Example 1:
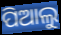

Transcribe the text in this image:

ପିଆଲୁ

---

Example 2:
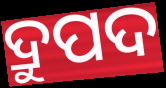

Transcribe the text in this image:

ଦ୍ରୁପଦ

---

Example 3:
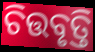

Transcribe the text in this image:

ଚିତ୍ତବୃତ୍ତି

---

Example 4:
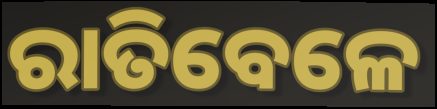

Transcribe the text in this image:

ରାତିବେଳେ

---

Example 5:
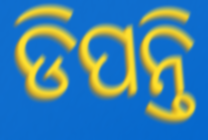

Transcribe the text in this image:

ଡିପନ୍ତି